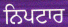
ਨਿਪਟਾਰ